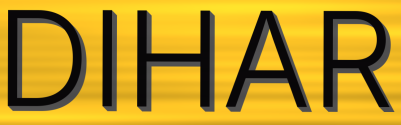
DIHAR